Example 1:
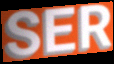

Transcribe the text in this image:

SER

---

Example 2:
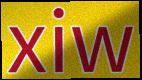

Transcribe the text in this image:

xiw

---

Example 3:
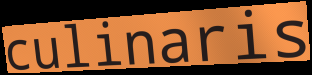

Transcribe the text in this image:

culinaris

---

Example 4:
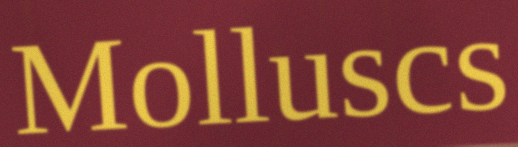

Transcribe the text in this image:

Molluscs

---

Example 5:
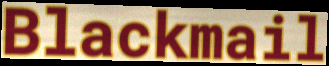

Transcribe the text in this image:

Blackmail